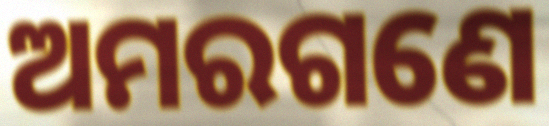
ଅମରଗଣେ